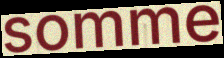
somme